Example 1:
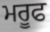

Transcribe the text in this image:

ਮਰੂਫ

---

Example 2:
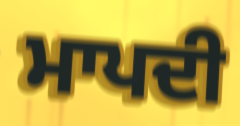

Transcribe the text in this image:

ਮਾਪਦੀ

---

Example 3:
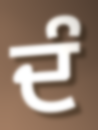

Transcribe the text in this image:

ਦੰ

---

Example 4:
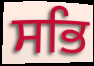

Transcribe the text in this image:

ਸਭਿ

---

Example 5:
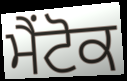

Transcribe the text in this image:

ਮੈਂਟੋਕ